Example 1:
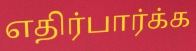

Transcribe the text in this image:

எதிர்பார்க்க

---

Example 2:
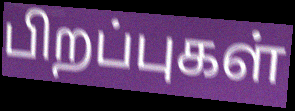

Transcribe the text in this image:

பிறப்புகள்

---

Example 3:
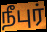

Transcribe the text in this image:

நீபுர்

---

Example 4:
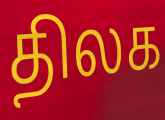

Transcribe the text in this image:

திலக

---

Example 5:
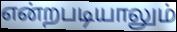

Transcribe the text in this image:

என்றபடியாலும்